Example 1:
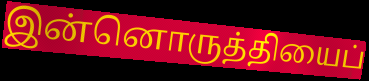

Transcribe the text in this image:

இன்னொருத்தியைப்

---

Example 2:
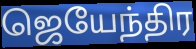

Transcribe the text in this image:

ஜெயேந்திர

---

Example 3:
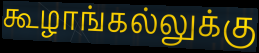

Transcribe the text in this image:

கூழாங்கல்லுக்கு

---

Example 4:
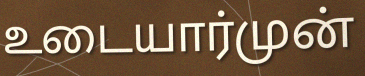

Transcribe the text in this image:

உடையார்முன்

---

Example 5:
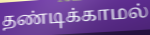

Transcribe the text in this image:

தண்டிக்காமல்